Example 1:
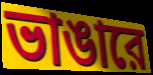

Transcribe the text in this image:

ভাঙারে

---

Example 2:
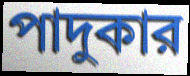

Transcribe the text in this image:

পাদুকার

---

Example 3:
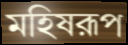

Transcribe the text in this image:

মহিষরূপ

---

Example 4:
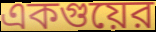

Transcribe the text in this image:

একগুয়ের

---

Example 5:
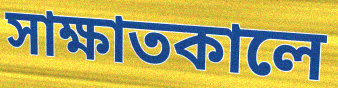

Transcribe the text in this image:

সাক্ষাতকালে